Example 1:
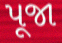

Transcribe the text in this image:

પૂજા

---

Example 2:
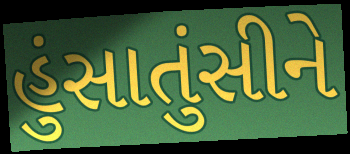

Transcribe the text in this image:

હુંસાતુંસીને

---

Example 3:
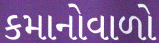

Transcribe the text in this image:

કમાનોવાળો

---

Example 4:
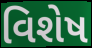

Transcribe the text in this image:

વિશેષ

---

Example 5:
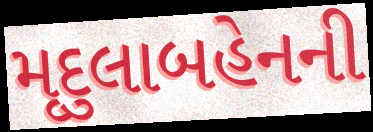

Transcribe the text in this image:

મૃદુલાબહેનની